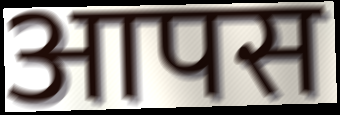
आपस